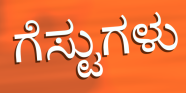
ಗೆಸ್ಟುಗಳು